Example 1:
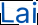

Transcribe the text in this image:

Lai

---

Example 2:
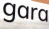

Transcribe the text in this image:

gara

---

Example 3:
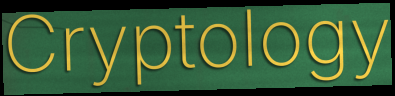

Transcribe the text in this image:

Cryptology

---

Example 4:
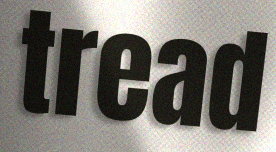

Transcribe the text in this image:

tread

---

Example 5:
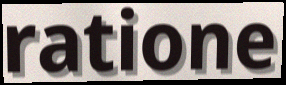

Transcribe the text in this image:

ratione